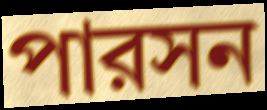
পারসন